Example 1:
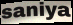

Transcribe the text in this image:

saniya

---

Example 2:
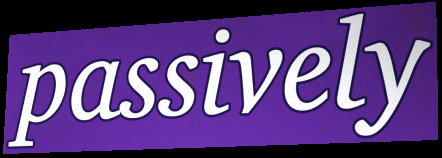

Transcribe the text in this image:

passively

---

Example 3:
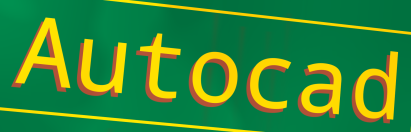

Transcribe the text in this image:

Autocad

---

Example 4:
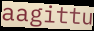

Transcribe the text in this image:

aagittu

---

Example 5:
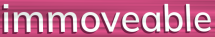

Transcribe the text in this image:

immoveable